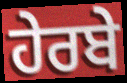
ਹੇਰਬੇ